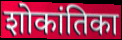
शोकांतिका